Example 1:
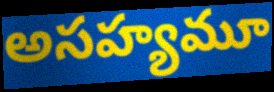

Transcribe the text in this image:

అసహ్యమూ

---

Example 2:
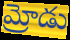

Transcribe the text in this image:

మ్రోడు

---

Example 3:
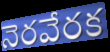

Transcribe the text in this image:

నెరవేరక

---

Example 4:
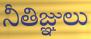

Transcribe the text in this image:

నీతిజ్ఞులు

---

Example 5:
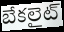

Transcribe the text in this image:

బేకలైట్